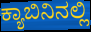
ಕ್ಯಾಬಿನಿನಲ್ಲಿ